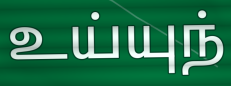
உய்யுந்